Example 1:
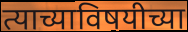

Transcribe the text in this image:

त्याच्याविषयीच्या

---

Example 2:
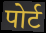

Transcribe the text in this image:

पोर्ट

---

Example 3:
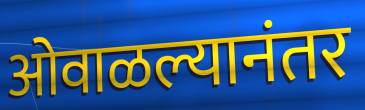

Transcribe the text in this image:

ओवाळल्यानंतर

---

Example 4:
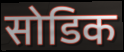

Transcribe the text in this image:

सोडिक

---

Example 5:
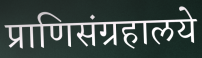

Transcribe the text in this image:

प्राणिसंग्रहालये